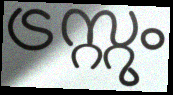
ട്രസ്റ്റും